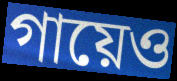
গায়েও